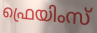
ഫ്രെയിംസ്